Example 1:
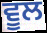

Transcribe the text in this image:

ਵੂਲ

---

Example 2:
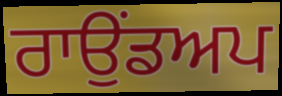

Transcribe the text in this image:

ਰਾਉਂਡਅਪ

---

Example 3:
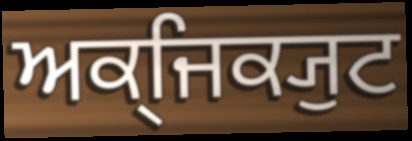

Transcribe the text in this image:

ਅਕ੍ਜਿਕ੍ਯੁਟ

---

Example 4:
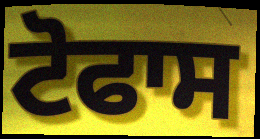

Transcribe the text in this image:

ਟੋਫਾਸ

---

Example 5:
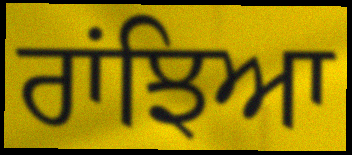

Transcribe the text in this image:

ਰਾਂਝਿਆ